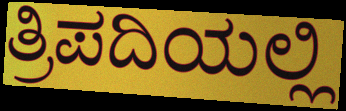
ತ್ರಿಪದಿಯಲ್ಲಿ